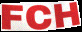
FCH